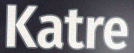
Katre